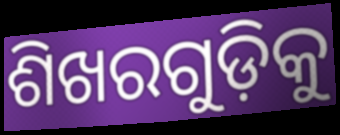
ଶିଖରଗୁଡ଼ିକୁ